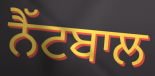
ਨੈੱਟਬਾਲ